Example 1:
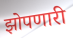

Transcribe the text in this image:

झोपणारी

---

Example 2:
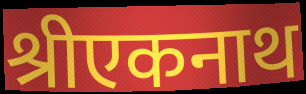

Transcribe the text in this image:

श्रीएकनाथ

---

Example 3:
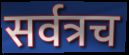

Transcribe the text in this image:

सर्वत्रच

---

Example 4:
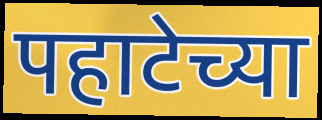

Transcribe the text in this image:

पहाटेच्या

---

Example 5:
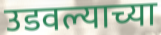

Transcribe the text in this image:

उडवल्याच्या